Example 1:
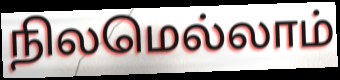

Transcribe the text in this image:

நிலமெல்லாம்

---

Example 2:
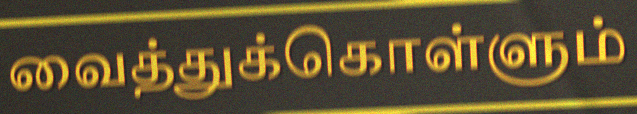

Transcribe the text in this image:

வைத்துக்கொள்ளும்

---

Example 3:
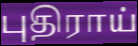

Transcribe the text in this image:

புதிராய்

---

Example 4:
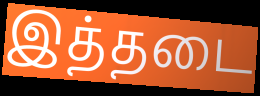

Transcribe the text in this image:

இத்தடை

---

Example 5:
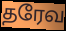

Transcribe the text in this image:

தரேவ